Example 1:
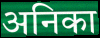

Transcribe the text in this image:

अनिका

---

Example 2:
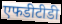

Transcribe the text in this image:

एफडीटीडी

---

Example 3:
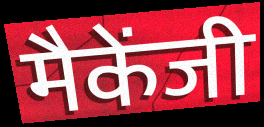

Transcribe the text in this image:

मैकेंजी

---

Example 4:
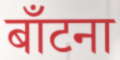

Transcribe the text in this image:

बाँटना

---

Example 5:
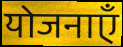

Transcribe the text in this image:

योजनाएँ